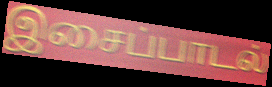
இசைப்பாடல்